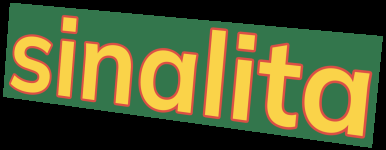
sinalita